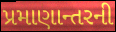
પ્રમાણાન્તરની